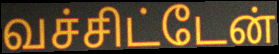
வச்சிட்டேன்